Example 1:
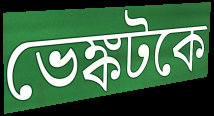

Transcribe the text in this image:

ভেঙ্কটকে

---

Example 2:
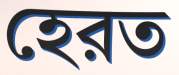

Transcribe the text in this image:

হেরত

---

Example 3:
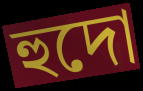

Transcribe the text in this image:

হুদো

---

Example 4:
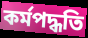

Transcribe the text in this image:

কর্মপদ্ধতি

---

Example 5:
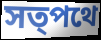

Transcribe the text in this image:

সত্পথে